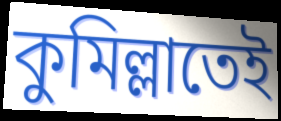
কুমিল্লাতেই